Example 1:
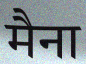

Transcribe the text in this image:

मैना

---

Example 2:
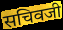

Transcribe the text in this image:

सचिवजी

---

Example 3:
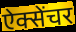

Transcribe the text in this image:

ऐक्सेंचर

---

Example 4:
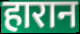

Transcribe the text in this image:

हारान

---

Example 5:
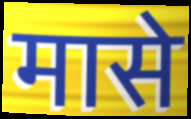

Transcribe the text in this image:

मासे